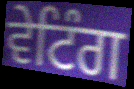
ਵੇਟਿੰਗ